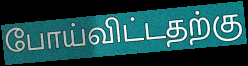
போய்விட்டதற்கு